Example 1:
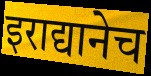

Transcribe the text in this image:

इराद्यानेच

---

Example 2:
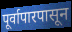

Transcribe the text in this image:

पूर्वापारपासून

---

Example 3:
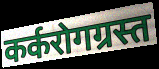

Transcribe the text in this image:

कर्करोगग्रस्त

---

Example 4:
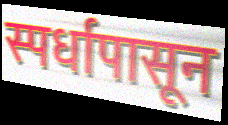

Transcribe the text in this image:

स्पर्धापासून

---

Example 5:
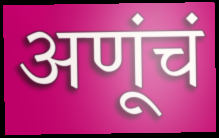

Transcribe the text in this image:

अणूंचं